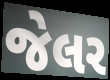
જેલર